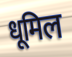
धूमिल